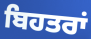
ਬਿਹਤਰਾਂ